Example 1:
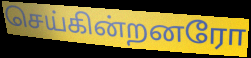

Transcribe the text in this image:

செய்கின்றனரோ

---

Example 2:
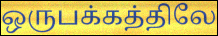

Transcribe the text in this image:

ஒருபக்கத்திலே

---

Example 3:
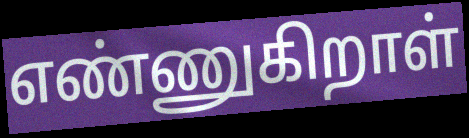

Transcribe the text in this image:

எண்ணுகிறாள்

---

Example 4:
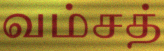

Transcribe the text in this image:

வம்சத்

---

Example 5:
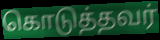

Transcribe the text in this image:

கொடுத்தவர்